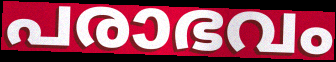
പരാഭവം